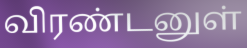
விரண்டனுள்